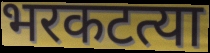
भरकटत्या